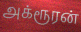
அக்ரூரன்